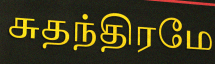
சுதந்திரமே